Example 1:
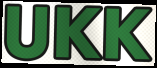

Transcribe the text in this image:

UKK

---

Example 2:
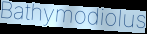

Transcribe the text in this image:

Bathymodiolus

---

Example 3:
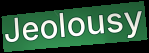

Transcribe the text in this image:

Jeolousy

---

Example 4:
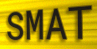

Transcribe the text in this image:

SMAT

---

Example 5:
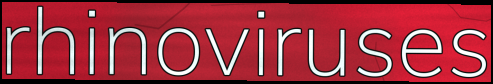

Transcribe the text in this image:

rhinoviruses